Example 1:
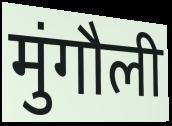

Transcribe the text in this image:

मुंगौली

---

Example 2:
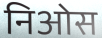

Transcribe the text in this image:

निओस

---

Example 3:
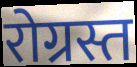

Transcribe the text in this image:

रोग्रस्त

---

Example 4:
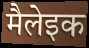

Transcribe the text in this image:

मैलेइक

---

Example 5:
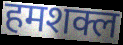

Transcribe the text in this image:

हमशक्ल